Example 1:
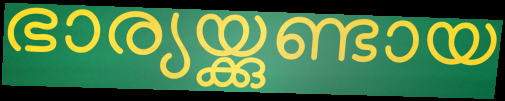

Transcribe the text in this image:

ഭാര്യയ്ക്കുണ്ടായ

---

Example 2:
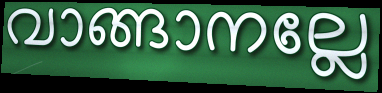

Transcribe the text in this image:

വാങ്ങാനല്ലേ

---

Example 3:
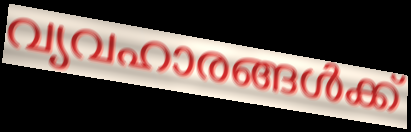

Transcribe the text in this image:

വ്യവഹാരങ്ങൾക്ക്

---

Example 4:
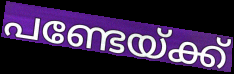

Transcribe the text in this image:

പണ്ടേയ്ക്ക്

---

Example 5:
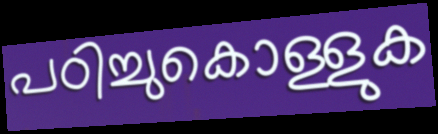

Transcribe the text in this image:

പഠിച്ചുകൊള്ളുക